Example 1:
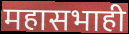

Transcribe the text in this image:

महासभाही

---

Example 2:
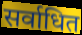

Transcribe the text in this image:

सर्वाधित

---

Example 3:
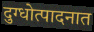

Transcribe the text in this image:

दुग्धोत्पादनात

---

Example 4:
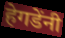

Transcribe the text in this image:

हेगडेंनी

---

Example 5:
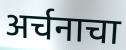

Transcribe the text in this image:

अर्चनाचा